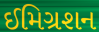
ઈમિગ્રશન